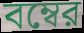
বম্বের